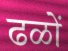
ढळों